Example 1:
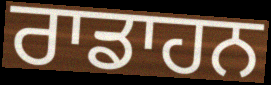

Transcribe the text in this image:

ਰਾਡਾਹਨ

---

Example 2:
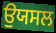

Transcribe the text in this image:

ਉਯਸਲ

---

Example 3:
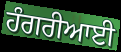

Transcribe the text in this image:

ਹੰਗਰੀਆਈ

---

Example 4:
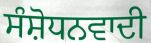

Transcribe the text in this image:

ਸੰਸ਼ੋਧਨਵਾਦੀ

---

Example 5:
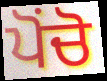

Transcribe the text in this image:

ਪੋਂਚੋ